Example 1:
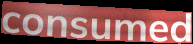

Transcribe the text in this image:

consumed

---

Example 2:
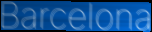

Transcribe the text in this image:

Barcelona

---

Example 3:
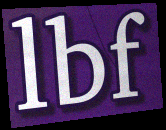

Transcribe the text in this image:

lbf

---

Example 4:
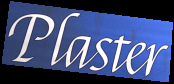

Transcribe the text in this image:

Plaster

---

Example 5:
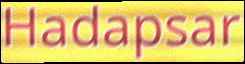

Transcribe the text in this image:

Hadapsar